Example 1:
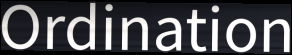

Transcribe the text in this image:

Ordination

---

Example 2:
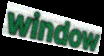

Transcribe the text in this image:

window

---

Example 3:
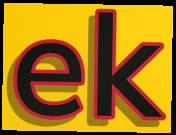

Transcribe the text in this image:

ek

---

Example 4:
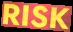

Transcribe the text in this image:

RISK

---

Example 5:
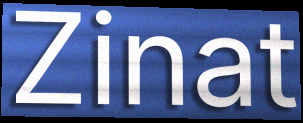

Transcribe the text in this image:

Zinat